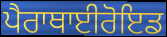
ਪੈਰਾਥਾਈਰੋਇਡ